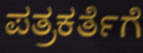
ಪತ್ರಕರ್ತೆಗೆ